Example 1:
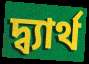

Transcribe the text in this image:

দ্ব্যার্থ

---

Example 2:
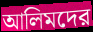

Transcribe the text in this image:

আলিমদের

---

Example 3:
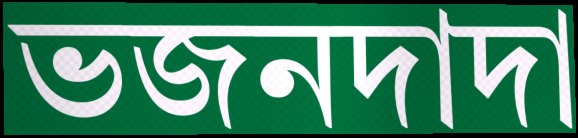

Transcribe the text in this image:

ভজনদাদা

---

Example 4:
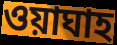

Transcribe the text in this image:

ওয়াঘাহ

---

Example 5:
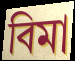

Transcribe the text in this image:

বিমা